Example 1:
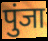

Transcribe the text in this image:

पुंजा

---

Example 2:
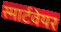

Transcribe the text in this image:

स्मार्टवेयर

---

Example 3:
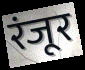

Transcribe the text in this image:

रंजूर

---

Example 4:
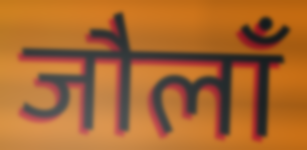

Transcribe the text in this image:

जौलाँ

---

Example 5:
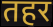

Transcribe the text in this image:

तहर